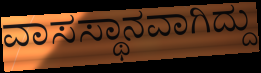
ವಾಸಸ್ಥಾನವಾಗಿದ್ದು